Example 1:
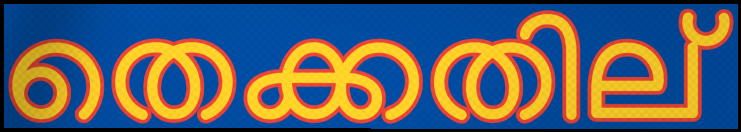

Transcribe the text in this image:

തെക്കതില്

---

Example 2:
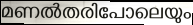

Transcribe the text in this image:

മണൽതരിപോലെയും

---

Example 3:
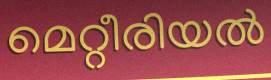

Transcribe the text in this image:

മെറ്റീരിയൽ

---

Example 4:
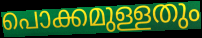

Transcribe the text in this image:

പൊക്കമുള്ളതും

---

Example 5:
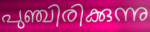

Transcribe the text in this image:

പുഞ്ചിരിക്കുന്നു